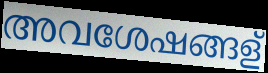
അവശേഷങ്ങള്